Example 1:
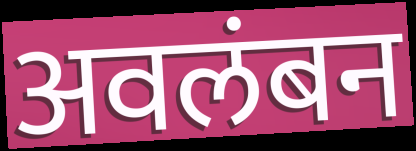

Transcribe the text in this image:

अवलंबन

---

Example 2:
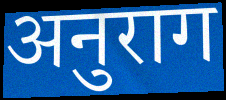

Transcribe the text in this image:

अनुराग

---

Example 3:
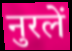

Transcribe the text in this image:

नुरलें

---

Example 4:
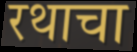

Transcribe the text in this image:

रथाचा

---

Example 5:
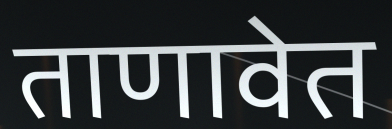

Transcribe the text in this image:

ताणावेत